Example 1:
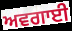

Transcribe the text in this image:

ਅਵਗਾਈ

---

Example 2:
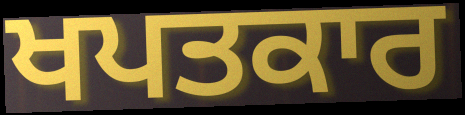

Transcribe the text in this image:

ਖਪਤਕਾਰ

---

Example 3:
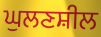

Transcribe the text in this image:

ਘੁਲਣਸ਼ੀਲ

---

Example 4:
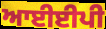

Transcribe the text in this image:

ਆਈਈਪੀ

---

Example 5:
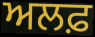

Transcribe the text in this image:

ਅਲਫ਼